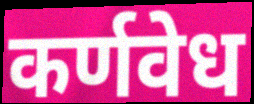
कर्णवेध